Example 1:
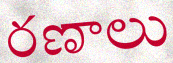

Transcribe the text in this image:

రణాలు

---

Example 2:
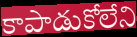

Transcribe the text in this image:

కాపాడుకోలేని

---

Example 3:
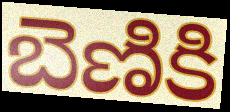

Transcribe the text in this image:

బెణికి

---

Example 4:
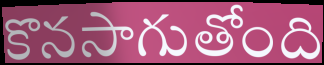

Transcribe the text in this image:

కొనసాగుతోంది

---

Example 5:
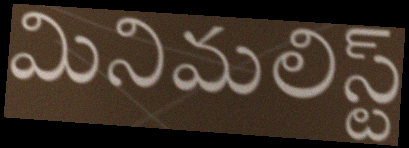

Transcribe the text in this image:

మినిమలిస్ట్